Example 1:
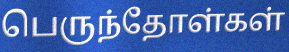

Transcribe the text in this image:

பெருந்தோள்கள்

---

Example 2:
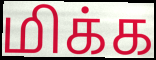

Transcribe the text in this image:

மிக்க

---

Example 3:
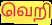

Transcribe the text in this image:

வெறி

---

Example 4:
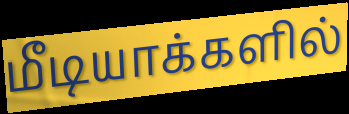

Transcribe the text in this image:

மீடியாக்களில்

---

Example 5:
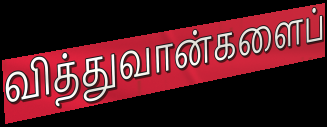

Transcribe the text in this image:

வித்துவான்களைப்